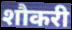
शौकरी